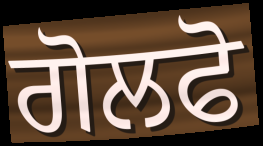
ਗੋਲਫੋ